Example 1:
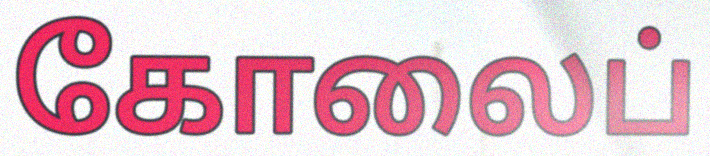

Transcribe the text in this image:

கோலைப்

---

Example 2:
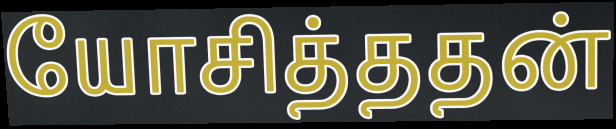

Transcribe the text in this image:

யோசித்ததன்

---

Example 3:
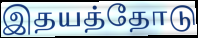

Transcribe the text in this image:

இதயத்தோடு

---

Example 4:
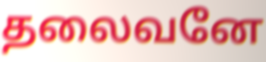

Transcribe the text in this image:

தலைவனே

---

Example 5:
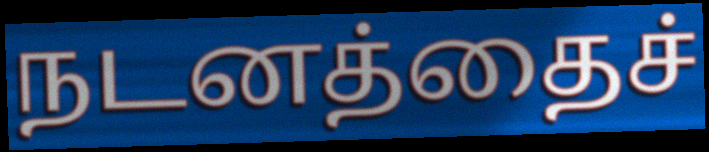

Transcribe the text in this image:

நடனத்தைச்